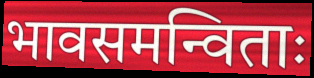
भावसमन्विताः